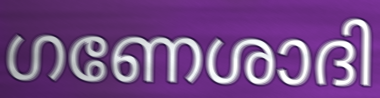
ഗണേശാദി